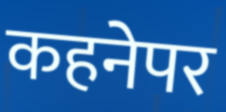
कहनेपर